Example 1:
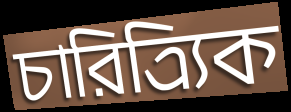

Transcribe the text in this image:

চারিত্র্যিক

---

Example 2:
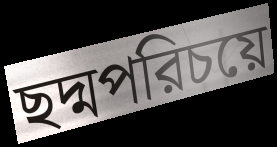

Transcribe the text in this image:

ছদ্মপরিচয়ে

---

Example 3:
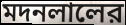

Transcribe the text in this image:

মদনলালের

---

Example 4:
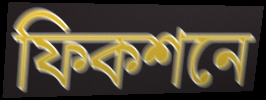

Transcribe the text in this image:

ফিকশনে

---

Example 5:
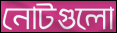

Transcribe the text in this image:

নোটগুলো